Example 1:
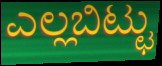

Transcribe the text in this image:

ಎಲ್ಲಬಿಟ್ಟು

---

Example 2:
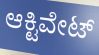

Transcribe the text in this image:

ಆಕ್ಟಿವೇಟ್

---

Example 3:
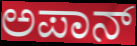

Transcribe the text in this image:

ಅಪಾನ್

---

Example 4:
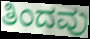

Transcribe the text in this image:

ತಿಂದವು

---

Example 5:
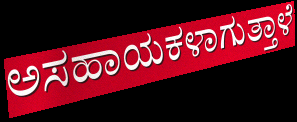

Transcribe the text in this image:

ಅಸಹಾಯಕಳಾಗುತ್ತಾಳೆ